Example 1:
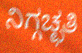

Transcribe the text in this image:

ನಿಗ್ಗಚ್ಛತಿ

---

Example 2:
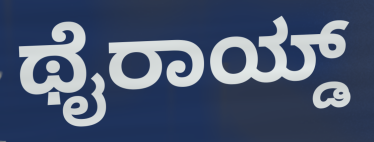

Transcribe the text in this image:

ಥೈರಾಯ್ಡ್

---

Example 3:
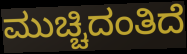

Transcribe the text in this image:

ಮುಚ್ಚಿದಂತಿದೆ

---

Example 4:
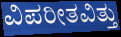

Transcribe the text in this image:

ವಿಪರೀತವಿತ್ತು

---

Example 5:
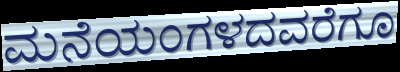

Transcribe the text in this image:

ಮನೆಯಂಗಳದವರೆಗೂ